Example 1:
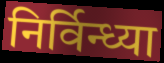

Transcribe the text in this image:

निर्विन्ध्या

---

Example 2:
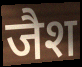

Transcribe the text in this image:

जैश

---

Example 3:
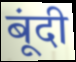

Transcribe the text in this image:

बूंदी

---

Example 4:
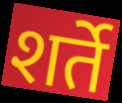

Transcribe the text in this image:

शर्ते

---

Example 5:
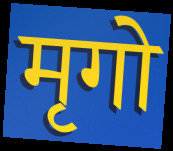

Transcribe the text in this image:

मृगो